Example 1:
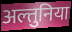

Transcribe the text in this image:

अल्तुनिया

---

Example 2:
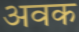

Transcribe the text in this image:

अवक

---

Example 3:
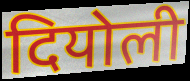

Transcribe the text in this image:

दियोली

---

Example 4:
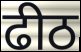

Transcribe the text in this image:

ढीठ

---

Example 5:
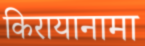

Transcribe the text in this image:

किरायानामा